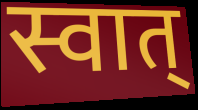
स्वात्